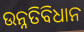
ଉନ୍ନତିବିଧାନ